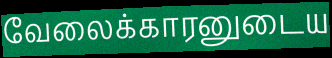
வேலைக்காரனுடைய